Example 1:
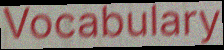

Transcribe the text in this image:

Vocabulary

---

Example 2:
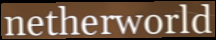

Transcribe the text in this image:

netherworld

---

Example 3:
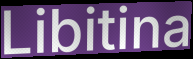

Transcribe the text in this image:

Libitina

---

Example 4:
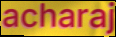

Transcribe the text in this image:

acharaj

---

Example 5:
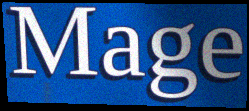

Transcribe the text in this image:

Mage